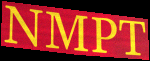
NMPT